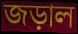
জড়াল